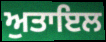
ਅੁਤਾਇਲ